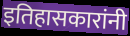
इतिहासकारांनी